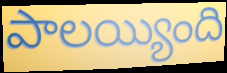
పాలయ్యింది